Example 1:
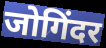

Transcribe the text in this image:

जोगिंदर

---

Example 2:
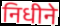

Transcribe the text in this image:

निधीने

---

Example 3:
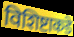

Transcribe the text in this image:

विशिष्टाकडे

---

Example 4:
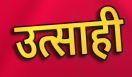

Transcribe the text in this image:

उत्साही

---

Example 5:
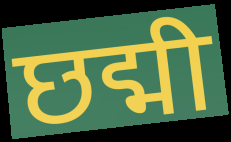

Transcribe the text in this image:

छद्मी